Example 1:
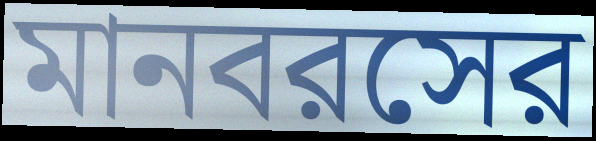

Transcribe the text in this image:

মানবরসের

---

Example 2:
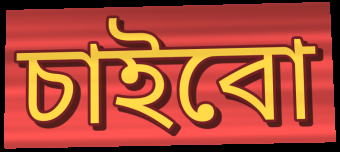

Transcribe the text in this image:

চাইবো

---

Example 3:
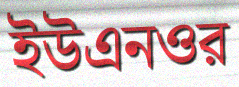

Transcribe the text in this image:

ইউএনওর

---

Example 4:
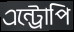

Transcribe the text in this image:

এন্ট্রোপি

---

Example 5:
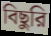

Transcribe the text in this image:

বিছুরি